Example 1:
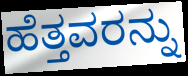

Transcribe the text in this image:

ಹೆತ್ತವರನ್ನು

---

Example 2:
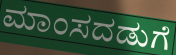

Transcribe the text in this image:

ಮಾಂಸದಡುಗೆ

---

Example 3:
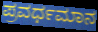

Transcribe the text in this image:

ಪ್ರವರ್ಧಮಾನ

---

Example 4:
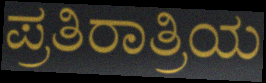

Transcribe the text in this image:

ಪ್ರತಿರಾತ್ರಿಯ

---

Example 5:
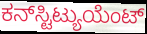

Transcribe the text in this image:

ಕನ್‌ಸ್ಟಿಟ್ಯುಯೆಂಟ್